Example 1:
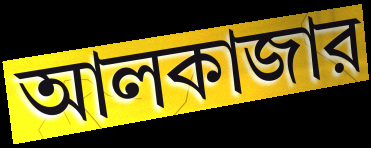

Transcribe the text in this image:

আলকাজার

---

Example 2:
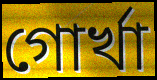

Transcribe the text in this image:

গোর্খা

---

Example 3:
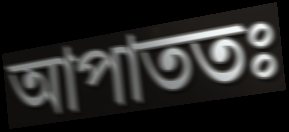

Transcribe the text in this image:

আপাততঃ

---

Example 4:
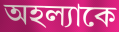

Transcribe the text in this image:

অহল্যাকে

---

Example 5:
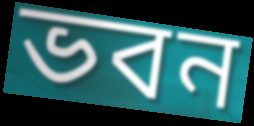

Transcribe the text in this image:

ভবন